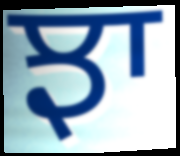
ਝਾ